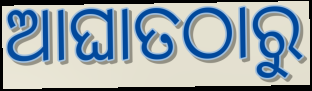
ଆଘାତଠାରୁ